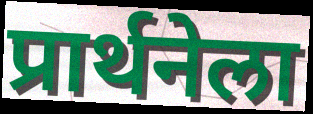
प्रार्थनेला